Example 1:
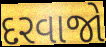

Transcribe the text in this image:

દરવાજો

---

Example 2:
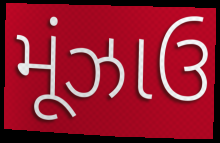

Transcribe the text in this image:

મૂંઝાઉ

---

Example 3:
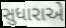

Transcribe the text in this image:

સુધારાએ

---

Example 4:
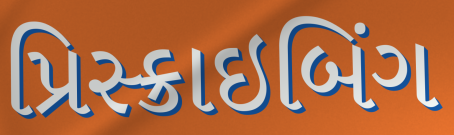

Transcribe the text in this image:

પ્રિસ્ક્રાઇબિંગ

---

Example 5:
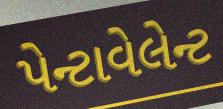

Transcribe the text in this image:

પેન્ટાવેલેન્ટ